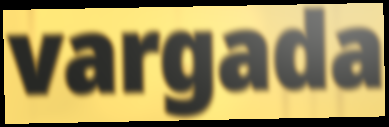
vargada